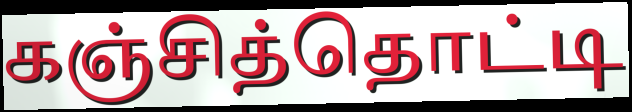
கஞ்சித்தொட்டி